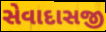
સેવાદાસજી